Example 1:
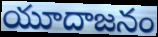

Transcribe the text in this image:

యూదాజనం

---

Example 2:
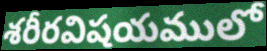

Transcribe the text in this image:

శరీరవిషయములో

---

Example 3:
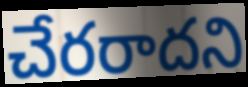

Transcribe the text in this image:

చేరరాదని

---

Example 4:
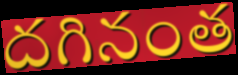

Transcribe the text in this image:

దగినంత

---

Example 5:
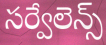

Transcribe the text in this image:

సర్వేలెన్స్